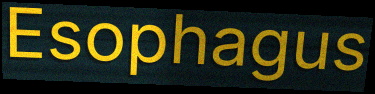
Esophagus